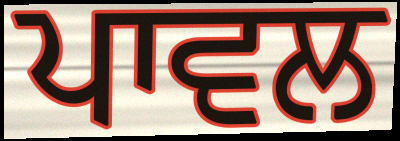
ਪਾਵਲ